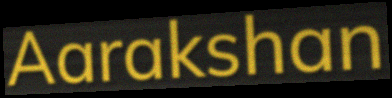
Aarakshan